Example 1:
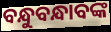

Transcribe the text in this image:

ବନ୍ଧୁବନ୍ଧାବଙ୍କ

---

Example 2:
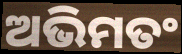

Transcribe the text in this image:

ଅଭିମତଂ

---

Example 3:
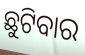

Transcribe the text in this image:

ଛୁଟିବାର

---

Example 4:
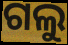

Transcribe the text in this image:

ଗଲୁ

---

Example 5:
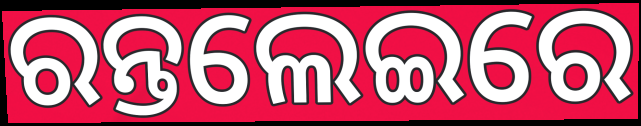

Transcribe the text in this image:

ରନ୍ତଲେଇରେ